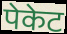
पेकेट